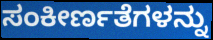
ಸಂಕೀರ್ಣತೆಗಳನ್ನು